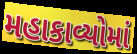
મહાકાવ્યોમાં